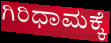
ಗಿರಿಧಾಮಕ್ಕೆ